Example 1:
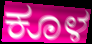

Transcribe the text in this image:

ಕೂಳ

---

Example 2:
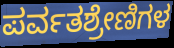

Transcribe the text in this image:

ಪರ್ವತಶ್ರೇಣಿಗಳ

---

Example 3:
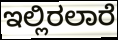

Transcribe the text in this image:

ಇಲ್ಲಿರಲಾರೆ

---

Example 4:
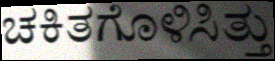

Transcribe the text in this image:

ಚಕಿತಗೊಳಿಸಿತ್ತು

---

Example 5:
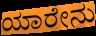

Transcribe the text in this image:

ಯಾರೇನು